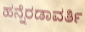
ಹನ್ನೆರಡಾವರ್ತಿ